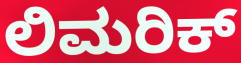
ಲಿಮರಿಕ್